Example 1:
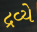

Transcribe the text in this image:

દ્રવ્યે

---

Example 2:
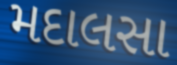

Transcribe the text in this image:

મદાલસા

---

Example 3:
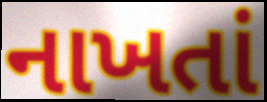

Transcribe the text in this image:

નાખતાં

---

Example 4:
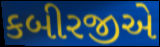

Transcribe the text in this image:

કબીરજીએ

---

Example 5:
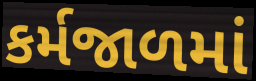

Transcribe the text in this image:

કર્મજાળમાં